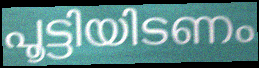
പൂട്ടിയിടണം